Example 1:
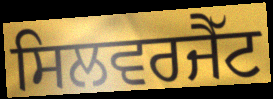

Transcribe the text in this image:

ਸਿਲਵਰਜੈੱਟ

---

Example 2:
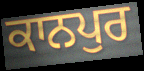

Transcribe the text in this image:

ਕਾਨਪੁਰ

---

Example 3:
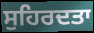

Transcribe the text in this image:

ਸੁਹਿਰਦਤਾ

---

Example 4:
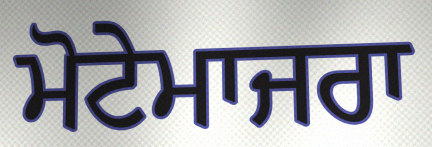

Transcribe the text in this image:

ਮੋਟੇਮਾਜਰਾ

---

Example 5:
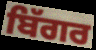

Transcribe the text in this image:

ਬਿੱਗਰ